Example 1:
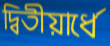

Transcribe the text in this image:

দ্বিতীয়ার্ধে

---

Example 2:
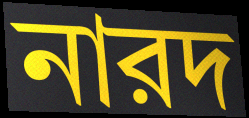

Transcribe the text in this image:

নারদ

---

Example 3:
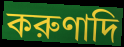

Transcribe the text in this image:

করুণাদি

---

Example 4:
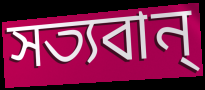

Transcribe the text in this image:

সত্যবান্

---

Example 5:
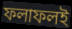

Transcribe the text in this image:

ফলাফলই